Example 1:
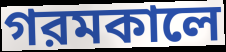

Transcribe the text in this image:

গরমকালে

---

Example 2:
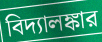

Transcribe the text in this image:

বিদ্যালঙ্কার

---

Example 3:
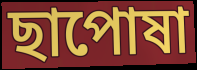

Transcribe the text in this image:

ছাপোষা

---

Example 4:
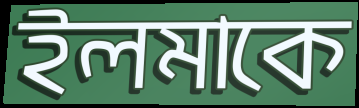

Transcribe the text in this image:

ইলমাকে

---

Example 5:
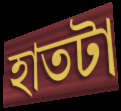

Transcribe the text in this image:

হাতটা